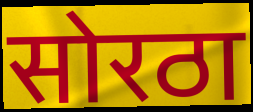
सोरठा